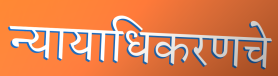
न्यायाधिकरणचे